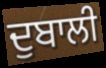
ਦੁਬਾਲੀ